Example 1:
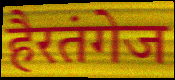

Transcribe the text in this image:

हैरतंगेज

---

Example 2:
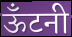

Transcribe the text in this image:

ऊँटनी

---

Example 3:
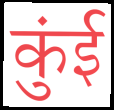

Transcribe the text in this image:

कुंई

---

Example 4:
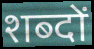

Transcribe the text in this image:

शब्‍दों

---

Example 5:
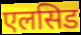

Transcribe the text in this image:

एलसिड